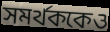
সমর্থককেও